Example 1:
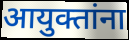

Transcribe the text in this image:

आयुक्तांना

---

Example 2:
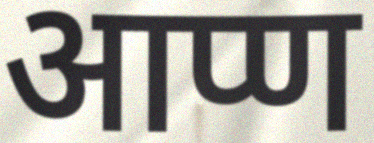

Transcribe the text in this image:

आप्ण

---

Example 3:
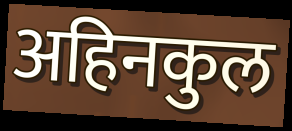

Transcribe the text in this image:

अहिनकुल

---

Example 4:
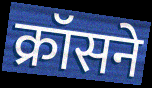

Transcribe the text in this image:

क्रॉसने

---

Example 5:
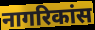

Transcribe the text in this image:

नागरिकांस